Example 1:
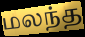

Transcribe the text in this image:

மலந்த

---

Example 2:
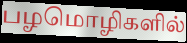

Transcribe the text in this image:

பழமொழிகளில்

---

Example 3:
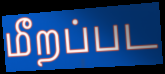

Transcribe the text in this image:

மீறப்பட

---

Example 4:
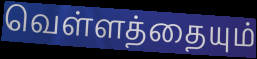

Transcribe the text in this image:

வெள்ளத்தையும்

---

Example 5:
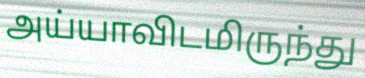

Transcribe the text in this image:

அய்யாவிடமிருந்து